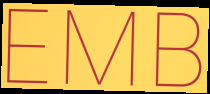
EMB